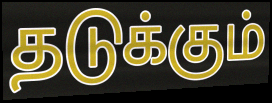
தடுக்கும்